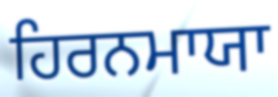
ਹਿਰਨਮਾਯਾ